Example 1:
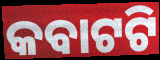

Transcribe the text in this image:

କବାଟଟି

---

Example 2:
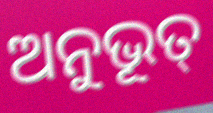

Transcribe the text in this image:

ଅନୁଭୂତ୍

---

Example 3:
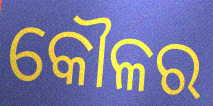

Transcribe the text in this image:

କୌଳର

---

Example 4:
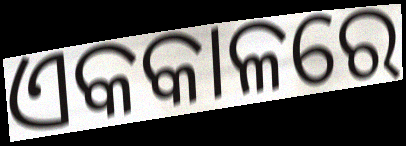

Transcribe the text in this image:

ଏକକାଳରେ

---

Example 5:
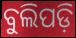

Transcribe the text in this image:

ବୁଲିପଡ଼ି